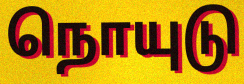
நொயுடு